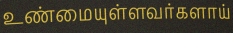
உண்மையுள்ளவர்களாய்